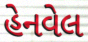
હેનવેલ